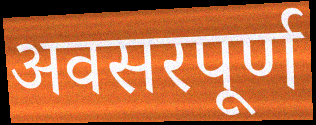
अवसरपूर्ण